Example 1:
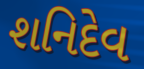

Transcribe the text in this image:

શનિદેવ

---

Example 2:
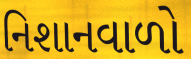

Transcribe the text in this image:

નિશાનવાળો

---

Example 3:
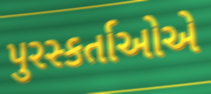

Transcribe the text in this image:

પુરસ્કર્તાઓએ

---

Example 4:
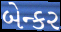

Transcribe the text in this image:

બેન્કર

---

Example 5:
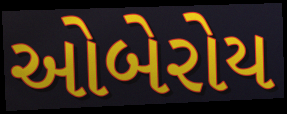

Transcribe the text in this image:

ઓબેરોય